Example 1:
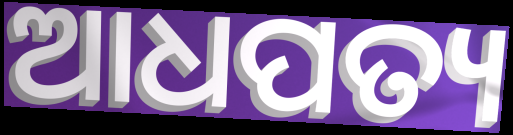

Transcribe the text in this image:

ଆଧପତ୍ୟ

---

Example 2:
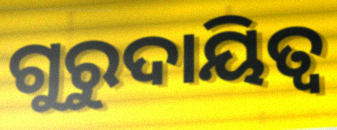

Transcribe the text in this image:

ଗୁରୁଦାୟିତ୍ୱ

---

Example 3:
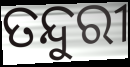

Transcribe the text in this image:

ତନ୍ଦୁରୀ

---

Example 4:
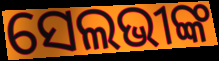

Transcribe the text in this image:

ସେଲଭୀଙ୍କ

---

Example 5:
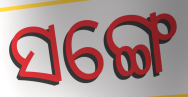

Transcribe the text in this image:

ସଙ୍ଗେ